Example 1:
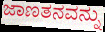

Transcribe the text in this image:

ಜಾಣತನವನ್ನು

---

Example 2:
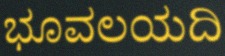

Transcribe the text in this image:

ಭೂವಲಯದಿ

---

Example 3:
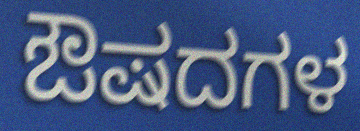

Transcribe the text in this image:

ಔಷದಗಳ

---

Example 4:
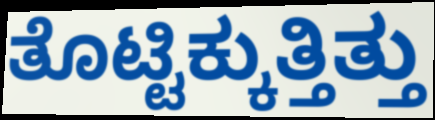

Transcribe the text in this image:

ತೊಟ್ಟಿಕ್ಕುತ್ತಿತ್ತು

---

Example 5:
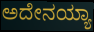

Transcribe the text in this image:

ಅದೇನಯ್ಯಾ